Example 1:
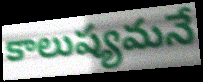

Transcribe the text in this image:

కాలుష్యమనే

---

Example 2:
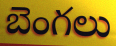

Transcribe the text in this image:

బెంగలు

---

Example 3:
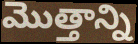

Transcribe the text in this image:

మొత్తాన్ని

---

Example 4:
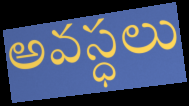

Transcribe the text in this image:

అవస్ధలు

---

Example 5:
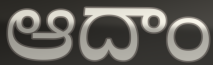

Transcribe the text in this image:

ఆదాం